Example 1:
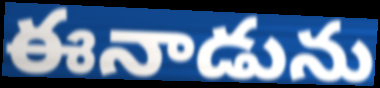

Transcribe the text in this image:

ఈనాడును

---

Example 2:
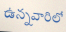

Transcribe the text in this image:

ఉన్నవారిలో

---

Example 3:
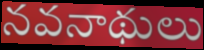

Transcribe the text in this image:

నవనాథులు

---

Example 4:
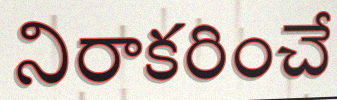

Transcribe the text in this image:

నిరాకరించే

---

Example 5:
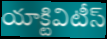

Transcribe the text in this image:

యాక్టివిటీస్